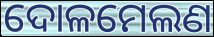
ଦୋଳମେଲଣ